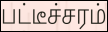
பட்டீச்சரம்